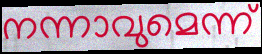
നന്നാവുമെന്ന്